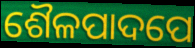
ଶୈଳପାଦପେ